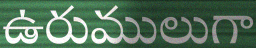
ఉరుములుగా